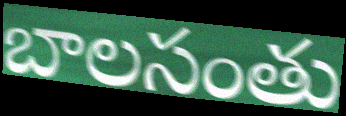
బాలసంతు